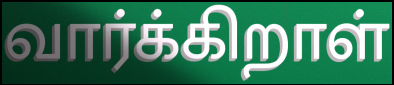
வார்க்கிறாள்